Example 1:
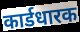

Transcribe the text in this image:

कार्डधारक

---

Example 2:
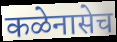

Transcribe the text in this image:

कळेनासेच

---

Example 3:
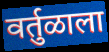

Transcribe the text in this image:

वर्तुळाला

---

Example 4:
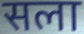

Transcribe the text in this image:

सला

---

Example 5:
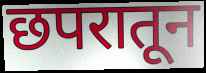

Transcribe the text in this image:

छपरातून